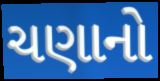
ચણાનો